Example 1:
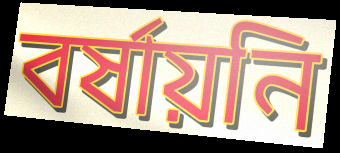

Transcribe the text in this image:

বর্ষায়নি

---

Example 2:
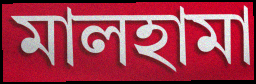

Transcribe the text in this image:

মালহামা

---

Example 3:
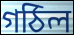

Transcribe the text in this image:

গঠিল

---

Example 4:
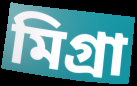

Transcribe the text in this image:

মিগ্রা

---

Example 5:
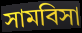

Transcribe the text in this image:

সামবিসা